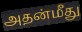
அதன்மீது